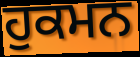
ਹੁਕਮਨ